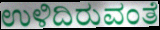
ಉಳಿದಿರುವಂತೆ